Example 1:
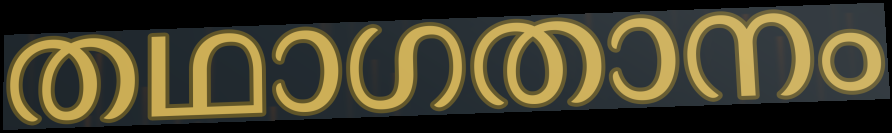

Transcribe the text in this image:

തഥാഗതാനം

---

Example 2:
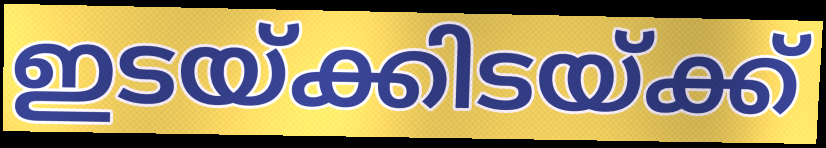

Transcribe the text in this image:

ഇടയ്ക്കിടയ്ക്ക്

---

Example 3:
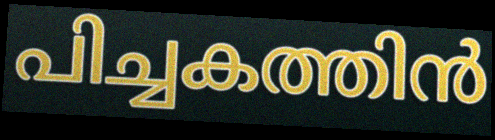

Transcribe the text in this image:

പിച്ചകത്തിൻ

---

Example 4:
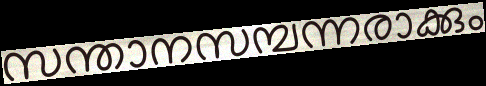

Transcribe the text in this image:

സന്താനസമ്പന്നരാക്കും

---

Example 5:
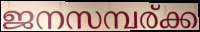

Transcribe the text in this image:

ജനസമ്പര്ക്ക